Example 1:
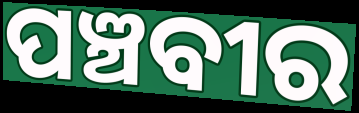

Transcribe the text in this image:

ପଞ୍ଚବୀର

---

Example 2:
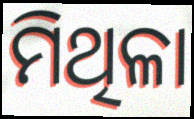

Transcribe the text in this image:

ମିଥିଳା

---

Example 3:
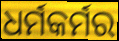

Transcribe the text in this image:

ଧର୍ମକର୍ମର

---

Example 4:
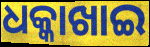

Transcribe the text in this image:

ଧକ୍କାଖାଇ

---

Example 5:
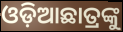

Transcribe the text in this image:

ଓଡ଼ିଆଛାତ୍ରଙ୍କୁ